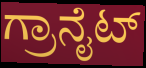
ಗ್ರಾನೈಟ್